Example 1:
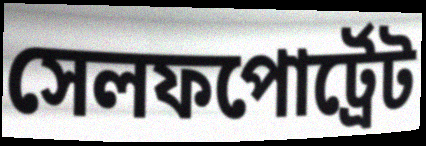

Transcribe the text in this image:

সেলফপোর্ট্রেট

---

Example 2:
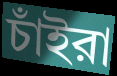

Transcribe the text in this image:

চাঁইরা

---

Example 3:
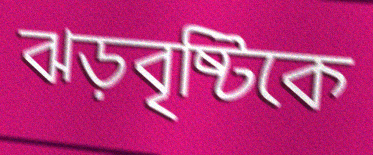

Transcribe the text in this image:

ঝড়বৃষ্টিকে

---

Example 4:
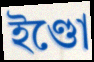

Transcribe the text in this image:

ইণ্ডো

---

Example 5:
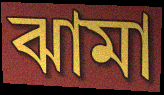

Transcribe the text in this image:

ঝামা